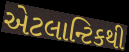
એટલાન્ટિકથી